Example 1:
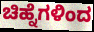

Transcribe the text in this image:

ಚಿಹ್ನೆಗಳಿಂದ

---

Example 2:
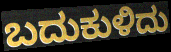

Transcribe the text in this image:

ಬದುಕುಳಿದು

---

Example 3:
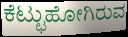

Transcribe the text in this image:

ಕೆಟ್ಟುಹೋಗಿರುವ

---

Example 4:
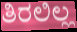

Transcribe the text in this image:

ತಿರಲಿಲ್ಲ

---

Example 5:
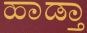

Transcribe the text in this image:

ಹಾಡ್ತಾ